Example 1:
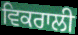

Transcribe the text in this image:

ਵਿਕਰਾਲੀ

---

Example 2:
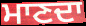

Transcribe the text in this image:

ਮਾਣਦਾ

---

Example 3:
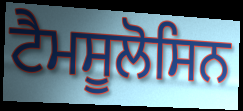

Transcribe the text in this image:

ਟੈਮਸੂਲੋਸਿਨ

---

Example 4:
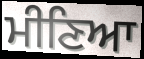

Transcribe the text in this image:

ਮੀਣਿਆ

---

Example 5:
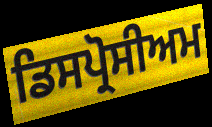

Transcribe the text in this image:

ਡਿਸਪ੍ਰੋਸੀਅਮ